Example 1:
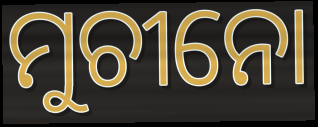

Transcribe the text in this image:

ମୁଚୀନୋ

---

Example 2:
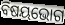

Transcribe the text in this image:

ବିଷୟଭୋଗ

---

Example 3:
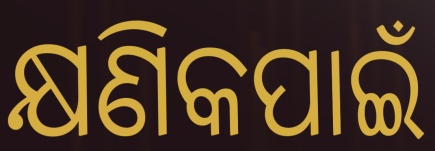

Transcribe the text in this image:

କ୍ଷଣିକପାଇଁ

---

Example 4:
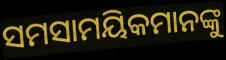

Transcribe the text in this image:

ସମସାମୟିକମାନଙ୍କୁ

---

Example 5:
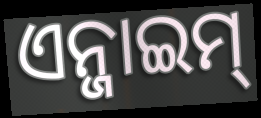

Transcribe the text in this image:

ଏନ୍ଜାଇମ୍